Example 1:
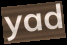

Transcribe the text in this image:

yad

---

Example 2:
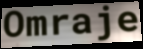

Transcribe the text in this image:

Omraje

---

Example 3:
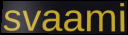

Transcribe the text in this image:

svaami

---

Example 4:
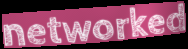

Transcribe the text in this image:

networked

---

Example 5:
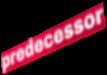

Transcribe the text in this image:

predecessor